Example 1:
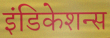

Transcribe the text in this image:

इंडिकेशन्स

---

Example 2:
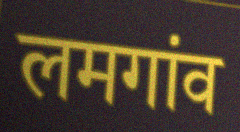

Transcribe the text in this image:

लमगांव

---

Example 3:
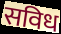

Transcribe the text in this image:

सविध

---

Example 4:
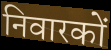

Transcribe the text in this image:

निवारकों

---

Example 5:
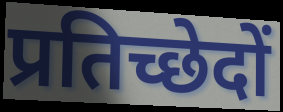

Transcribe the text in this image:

प्रतिच्छेदों